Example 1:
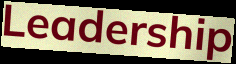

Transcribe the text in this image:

Leadership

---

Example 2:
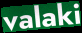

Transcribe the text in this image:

valaki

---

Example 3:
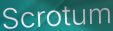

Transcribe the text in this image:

Scrotum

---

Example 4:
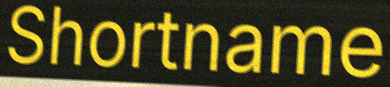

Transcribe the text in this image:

Shortname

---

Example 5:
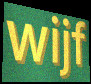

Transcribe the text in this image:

wijf